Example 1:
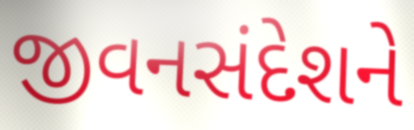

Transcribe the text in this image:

જીવનસંદેશને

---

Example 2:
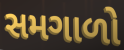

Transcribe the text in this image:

સમગાળો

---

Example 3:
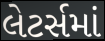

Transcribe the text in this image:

લેટર્સમાં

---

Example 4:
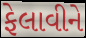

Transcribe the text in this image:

ફેલાવીને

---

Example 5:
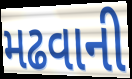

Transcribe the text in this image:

મઢવાની